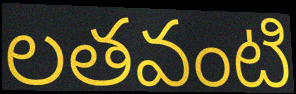
లతవంటి